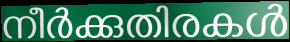
നീർക്കുതിരകൾ